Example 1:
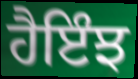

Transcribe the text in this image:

ਹੈਇੰਝ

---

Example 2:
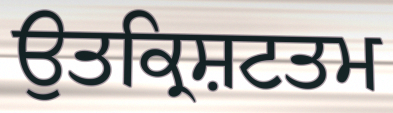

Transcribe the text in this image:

ਉਤਕ੍ਰਿਸ਼ਟਤਮ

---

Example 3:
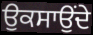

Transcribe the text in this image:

ਉਕਸਾਉਂਦੇ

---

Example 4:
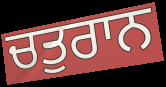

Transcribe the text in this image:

ਚਤੁਰਾਨ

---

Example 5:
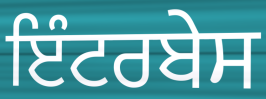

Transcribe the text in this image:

ਇੰਟਰਬੇਸ